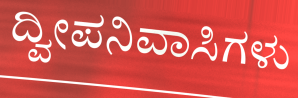
ದ್ವೀಪನಿವಾಸಿಗಳು